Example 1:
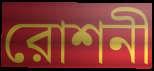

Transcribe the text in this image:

রোশনী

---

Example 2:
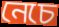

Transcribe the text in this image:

নেচে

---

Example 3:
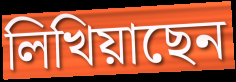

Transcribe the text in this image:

লিখিয়াছেন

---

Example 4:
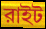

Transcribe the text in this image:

রাইট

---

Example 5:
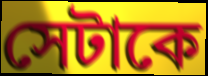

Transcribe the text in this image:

সেটাকে